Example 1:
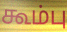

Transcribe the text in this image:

கூம்பு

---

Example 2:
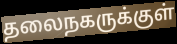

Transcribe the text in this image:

தலைநகருக்குள்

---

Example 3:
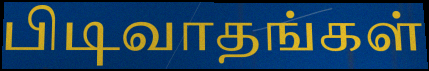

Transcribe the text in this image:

பிடிவாதங்கள்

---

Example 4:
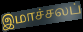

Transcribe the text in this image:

இமாச்சலப்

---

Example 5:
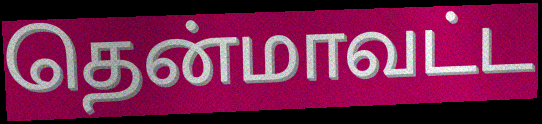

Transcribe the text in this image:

தென்மாவட்ட